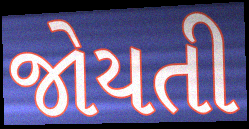
જોયતી